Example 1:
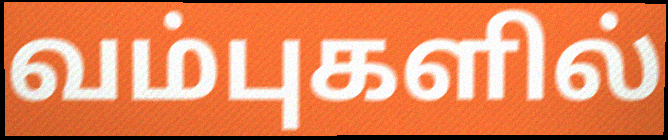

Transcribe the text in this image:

வம்புகளில்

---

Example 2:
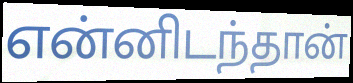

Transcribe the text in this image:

என்னிடந்தான்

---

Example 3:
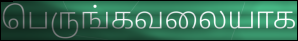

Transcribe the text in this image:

பெருங்கவலையாக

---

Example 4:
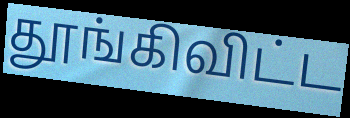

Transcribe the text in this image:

தூங்கிவிட்ட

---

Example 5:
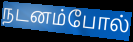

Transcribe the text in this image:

நடனம்போல்